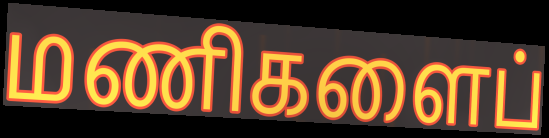
மணிகளைப்